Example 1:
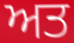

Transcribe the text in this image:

ਅਤ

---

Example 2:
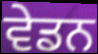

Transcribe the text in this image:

ਵੇਡਨ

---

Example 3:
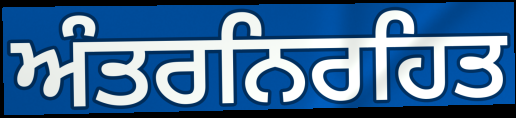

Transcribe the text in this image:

ਅੰਤਰਨਿਰਹਿਤ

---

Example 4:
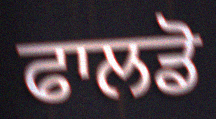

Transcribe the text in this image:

ਫਾਲਡੋ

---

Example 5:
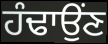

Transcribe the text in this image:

ਹੰਢਾਉਂਣ